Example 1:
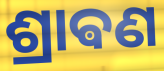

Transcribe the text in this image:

ଶ୍ରାଵଣ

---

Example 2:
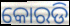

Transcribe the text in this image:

କୋରଡି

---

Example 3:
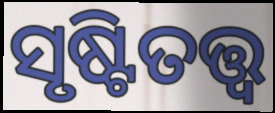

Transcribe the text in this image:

ସୃଷ୍ଟିତତ୍ତ୍ୱ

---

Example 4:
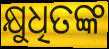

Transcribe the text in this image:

କ୍ଷୁଧିତଙ୍କ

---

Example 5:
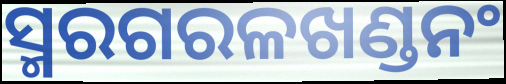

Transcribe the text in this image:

ସ୍ମରଗରଳଖଣ୍ଡନଂ